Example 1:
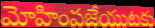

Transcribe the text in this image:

మోహింపజేయుటకు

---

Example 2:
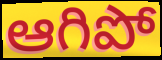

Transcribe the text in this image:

ఆగిపో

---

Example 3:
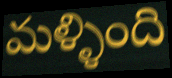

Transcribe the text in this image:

మళ్ళింది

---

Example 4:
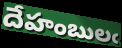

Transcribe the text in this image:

దేహంబులఁ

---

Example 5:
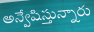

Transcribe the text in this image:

అన్వేషిస్తున్నారు